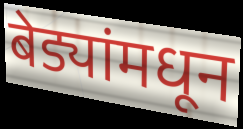
बेड्यांमधून